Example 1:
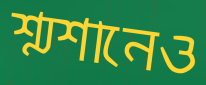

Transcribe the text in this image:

শ্মশানেও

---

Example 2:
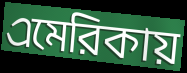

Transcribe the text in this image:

এমেরিকায়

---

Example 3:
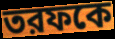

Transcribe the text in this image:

তরফকে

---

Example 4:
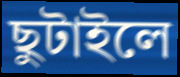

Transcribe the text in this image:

ছুটাইলে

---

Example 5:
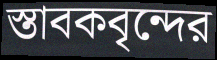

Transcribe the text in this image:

স্তাবকবৃন্দের